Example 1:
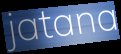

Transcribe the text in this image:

jatana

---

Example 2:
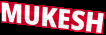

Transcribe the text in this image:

MUKESH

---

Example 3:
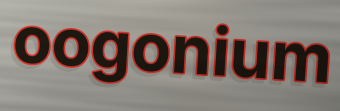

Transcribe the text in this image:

oogonium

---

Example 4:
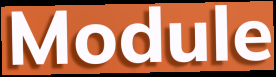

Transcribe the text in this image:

Module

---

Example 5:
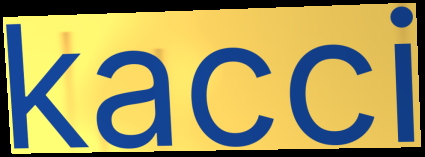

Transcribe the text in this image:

kacci